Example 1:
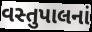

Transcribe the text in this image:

વસ્તુપાલનાં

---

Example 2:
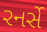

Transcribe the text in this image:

રનર્સે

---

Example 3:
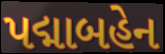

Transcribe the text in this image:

પદ્માબહેન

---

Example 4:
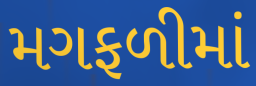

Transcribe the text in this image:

મગફળીમાં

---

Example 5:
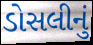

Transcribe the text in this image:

ડોસલીનું